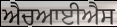
ਐਚਆਈਐਸ